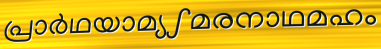
പ്രാർഥയാമ്യഽമരനാഥമഹം